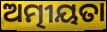
ଅତ୍ମୀୟତା